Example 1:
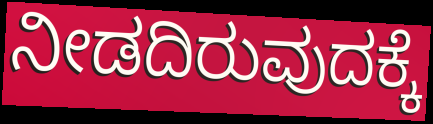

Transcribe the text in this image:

ನೀಡದಿರುವುದಕ್ಕೆ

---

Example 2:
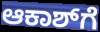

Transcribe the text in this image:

ಆಕಾಶ್‌ಗೆ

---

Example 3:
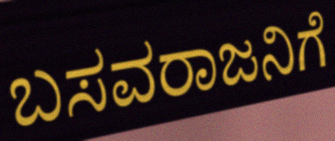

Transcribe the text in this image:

ಬಸವರಾಜನಿಗೆ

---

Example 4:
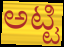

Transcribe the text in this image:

ಅಟ್ಟಿ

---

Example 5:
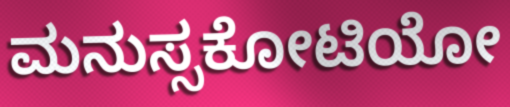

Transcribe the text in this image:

ಮನುಸ್ಸಕೋಟಿಯೋ